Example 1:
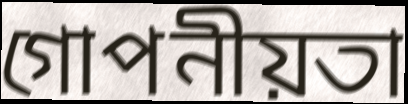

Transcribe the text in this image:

গোপনীয়তা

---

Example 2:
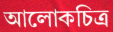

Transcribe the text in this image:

আলোকচিত্ৰ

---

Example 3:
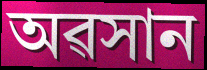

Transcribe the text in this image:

অৱসান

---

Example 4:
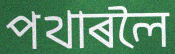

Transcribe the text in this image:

পথাৰলৈ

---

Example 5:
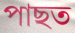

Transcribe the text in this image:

পাছত